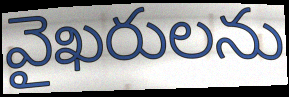
వైఖరులను